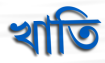
খাতি